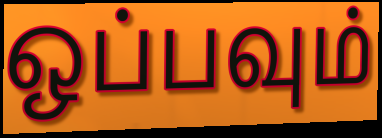
ஒப்பவும்